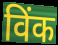
विंक